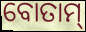
ବୋତାମ୍